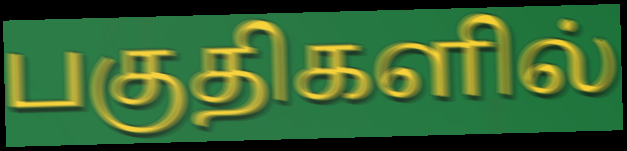
பகுதிகளில்